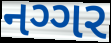
નગ્ગર